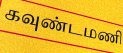
கவுண்டமணி